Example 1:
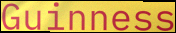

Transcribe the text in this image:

Guinness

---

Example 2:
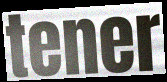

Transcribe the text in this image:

tener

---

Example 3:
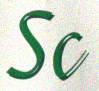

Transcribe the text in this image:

Sc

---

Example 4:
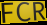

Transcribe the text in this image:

FCR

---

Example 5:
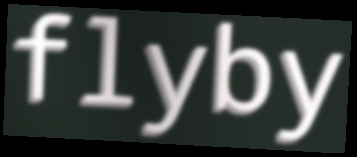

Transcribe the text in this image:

flyby